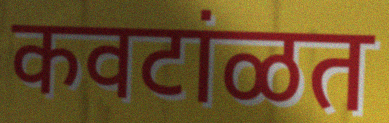
कवटांळत